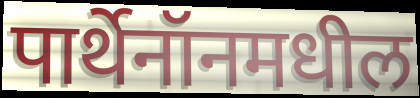
पार्थेनॉनमधील